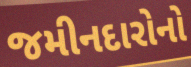
જમીનદારોનો